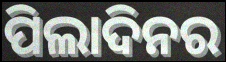
ପିଲାଦିନର